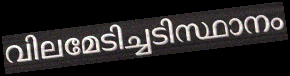
വിലമേടിച്ചടിസ്ഥാനം